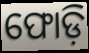
ଫୋଡ଼ି